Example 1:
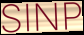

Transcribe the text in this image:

SINP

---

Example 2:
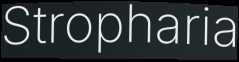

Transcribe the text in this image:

Stropharia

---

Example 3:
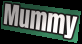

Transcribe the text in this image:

Mummy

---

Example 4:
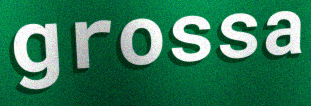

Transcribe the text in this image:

grossa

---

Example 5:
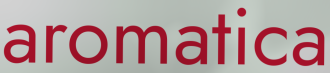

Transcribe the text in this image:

aromatica